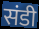
संडी